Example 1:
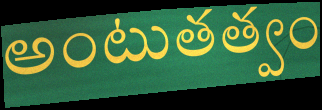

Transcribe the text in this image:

అంటుతత్వం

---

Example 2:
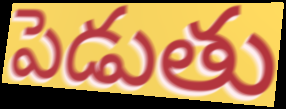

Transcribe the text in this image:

పెడుతు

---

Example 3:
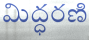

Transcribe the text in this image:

మిద్ధరణి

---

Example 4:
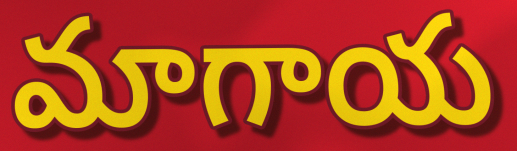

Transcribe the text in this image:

మాగాయ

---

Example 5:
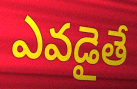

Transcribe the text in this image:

ఎవడైతే